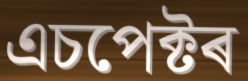
এচপেক্টৰ